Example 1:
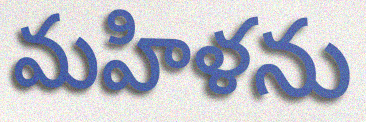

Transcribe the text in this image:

మహిళను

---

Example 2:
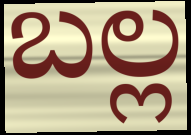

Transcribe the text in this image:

బల్ల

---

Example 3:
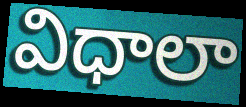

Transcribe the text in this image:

విధాలా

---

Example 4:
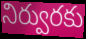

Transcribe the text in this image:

నిర్వురకు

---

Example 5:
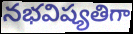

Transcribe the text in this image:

నభవిష్యతిగా